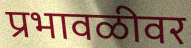
प्रभावळीवर